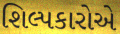
શિલ્પકારોએ